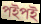
পইপই